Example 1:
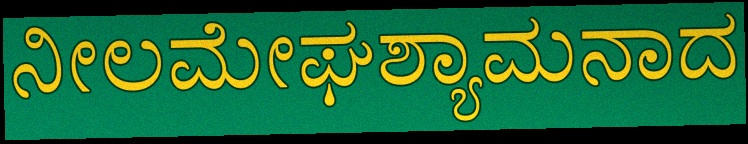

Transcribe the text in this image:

ನೀಲಮೇಘಶ್ಯಾಮನಾದ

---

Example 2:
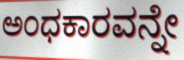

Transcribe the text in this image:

ಅಂಧಕಾರವನ್ನೇ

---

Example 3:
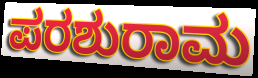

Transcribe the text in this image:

ಪರಶುರಾಮ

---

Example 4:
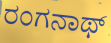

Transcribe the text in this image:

ರಂಗನಾಥ್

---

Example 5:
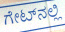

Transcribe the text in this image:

ಗೇಟ್‌ನಲ್ಲಿ